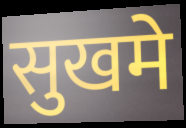
सुखमे